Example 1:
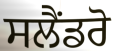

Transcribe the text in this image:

ਸਲੈਂਡਰੋ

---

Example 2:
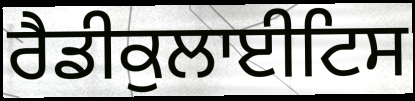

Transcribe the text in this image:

ਰੈਡੀਕੁਲਾਈਟਿਸ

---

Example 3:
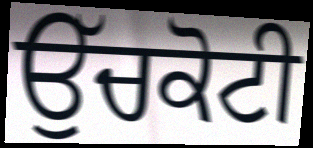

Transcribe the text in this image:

ਉੱਚਕੋਟੀ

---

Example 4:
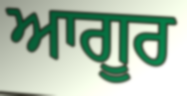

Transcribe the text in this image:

ਆਗੂਰ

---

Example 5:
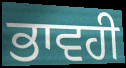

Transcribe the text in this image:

ਭਾਵਹੀ